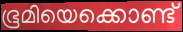
ഭൂമിയെക്കൊണ്ട്